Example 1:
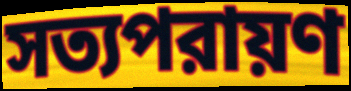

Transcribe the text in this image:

সত্যপরায়ণ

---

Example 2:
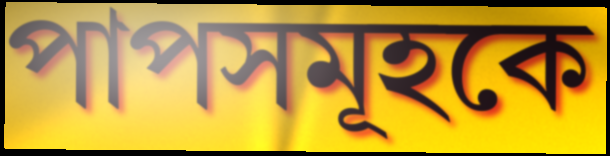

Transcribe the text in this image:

পাপসমূহকে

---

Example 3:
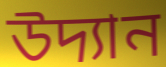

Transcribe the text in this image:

উদ্যান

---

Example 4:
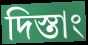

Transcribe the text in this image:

দিস্তাং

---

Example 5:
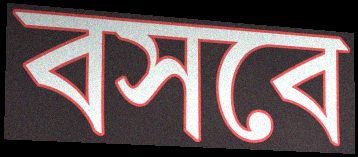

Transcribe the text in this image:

বসবে